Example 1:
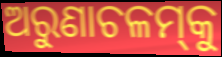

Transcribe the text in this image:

ଅରୁଣାଚଳମ୍‌କୁ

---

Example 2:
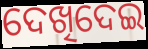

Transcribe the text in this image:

ଦେଖିଦେଇ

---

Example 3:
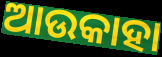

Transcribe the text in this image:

ଆଉକାହା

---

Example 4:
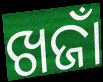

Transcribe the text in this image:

ଖଜାଁ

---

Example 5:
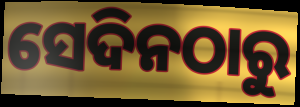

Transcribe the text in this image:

ସେଦିନଠାରୁ